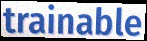
trainable